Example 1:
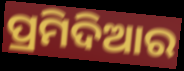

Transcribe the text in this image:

ପ୍ରମିଦିଆର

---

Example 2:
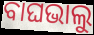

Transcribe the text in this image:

ବାଘଭାଲୁ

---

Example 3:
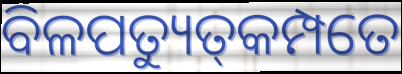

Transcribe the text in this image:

ବିଳପତ୍ୟୁତ୍‌କମ୍ପତେ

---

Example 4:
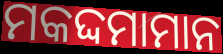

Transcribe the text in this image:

ମକଦ୍ଦମାମାନ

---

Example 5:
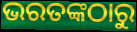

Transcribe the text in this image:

ଭରତଙ୍କଠାରୁ